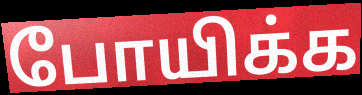
போயிக்க